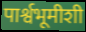
पार्श्वभूमीशी